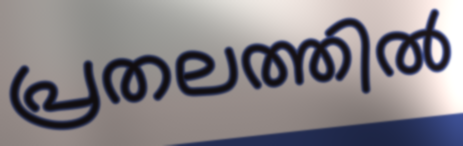
പ്രതലത്തിൽ